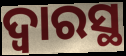
ଦ୍ବାରସ୍ଥ